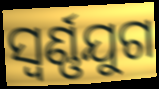
ସ୍ଵର୍ଣ୍ଣଯୁଗ